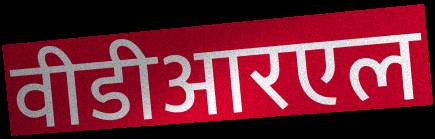
वीडीआरएल